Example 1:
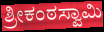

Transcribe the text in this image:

ಶ್ರೀಕಂಠಸ್ವಾಮಿ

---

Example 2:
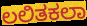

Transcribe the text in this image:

ಲಲಿತಕಲಾ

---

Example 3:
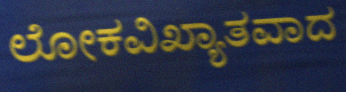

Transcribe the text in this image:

ಲೋಕವಿಖ್ಯಾತವಾದ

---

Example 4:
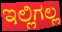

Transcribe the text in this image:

ಇಲ್ಲಿಗಲ್ಲ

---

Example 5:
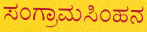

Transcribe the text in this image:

ಸಂಗ್ರಾಮಸಿಂಹನ